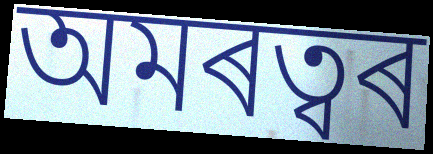
অমৰত্বৰ